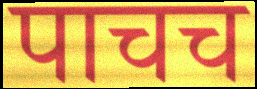
पाचच